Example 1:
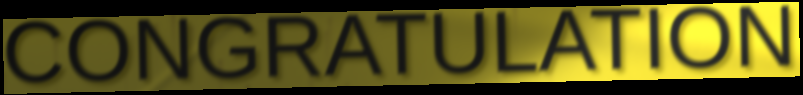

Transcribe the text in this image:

CONGRATULATION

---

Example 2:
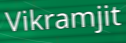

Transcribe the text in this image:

Vikramjit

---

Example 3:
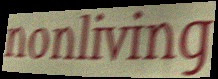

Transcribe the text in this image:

nonliving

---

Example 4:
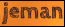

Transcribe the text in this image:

jeman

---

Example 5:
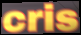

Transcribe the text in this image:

cris